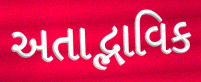
અતાદ્ભાવિક